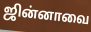
ஜின்னாவை